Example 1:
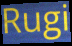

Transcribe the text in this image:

Rugi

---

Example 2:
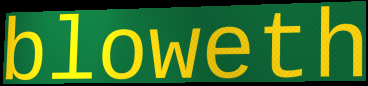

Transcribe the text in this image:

bloweth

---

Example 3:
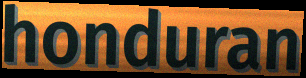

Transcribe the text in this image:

honduran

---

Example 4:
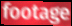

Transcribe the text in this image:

footage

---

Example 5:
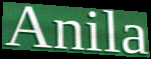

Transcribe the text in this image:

Anila